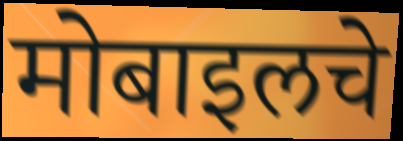
मोबाइलचे